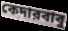
কেদারবাবু